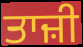
ਤਾਜ਼ੀ